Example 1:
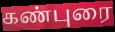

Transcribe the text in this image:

கண்புரை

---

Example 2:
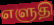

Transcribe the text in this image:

எளுதி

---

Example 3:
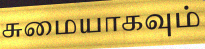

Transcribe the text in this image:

சுமையாகவும்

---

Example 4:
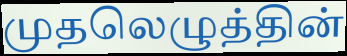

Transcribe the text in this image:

முதலெழுத்தின்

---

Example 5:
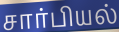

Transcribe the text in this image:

சார்பியல்